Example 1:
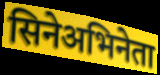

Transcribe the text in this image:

सिनेअभिनेता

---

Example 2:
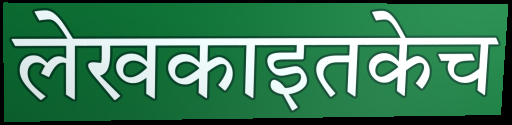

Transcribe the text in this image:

लेखकाइतकेच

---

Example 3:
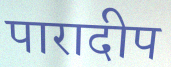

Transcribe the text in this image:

पारादीप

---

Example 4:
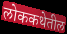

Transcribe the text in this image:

लोककथेतील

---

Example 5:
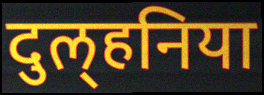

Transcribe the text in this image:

दुल्हनिया